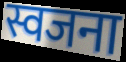
स्वजना